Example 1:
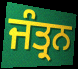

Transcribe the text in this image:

ਜੰਤ੍ਰਨ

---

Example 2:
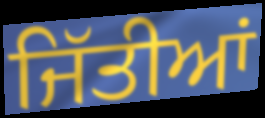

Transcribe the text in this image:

ਜਿੱਤੀਆਂ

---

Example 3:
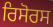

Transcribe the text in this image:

ਰਿਸੋਰਸ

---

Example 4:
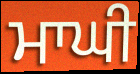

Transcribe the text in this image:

ਮਾਘੀ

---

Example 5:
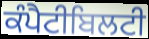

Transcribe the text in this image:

ਕੰਪੈਟੀਬਿਲਟੀ